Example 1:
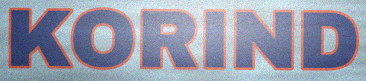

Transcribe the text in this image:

KORIND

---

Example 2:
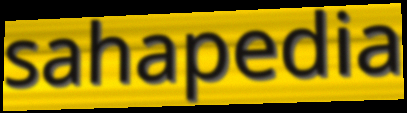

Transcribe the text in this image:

sahapedia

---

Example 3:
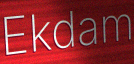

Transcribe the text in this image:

Ekdam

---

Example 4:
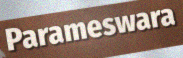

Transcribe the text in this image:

Parameswara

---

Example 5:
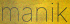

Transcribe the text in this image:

manik